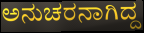
ಅನುಚರನಾಗಿದ್ದ